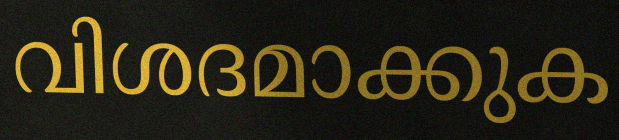
വിശദമാക്കുക